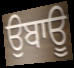
ਉਬਾਊ